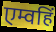
एम्वहिं